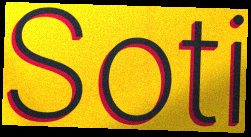
Soti